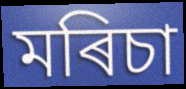
মৰিচা